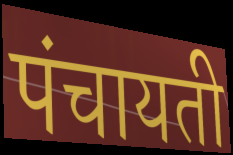
पंचायती